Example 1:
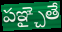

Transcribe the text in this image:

పఞ్చైతే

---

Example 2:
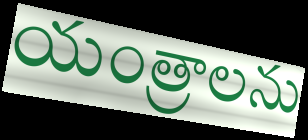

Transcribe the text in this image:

యంత్రాలను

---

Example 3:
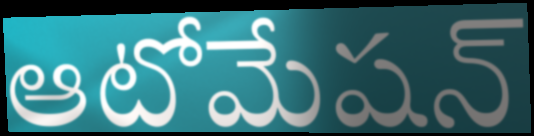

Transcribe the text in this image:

ఆటోమేషన్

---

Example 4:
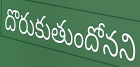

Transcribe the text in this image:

దొరుకుతుందోనని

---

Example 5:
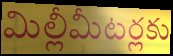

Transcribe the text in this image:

మిల్లీమీటర్లకు